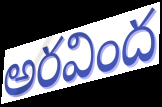
అరవింద